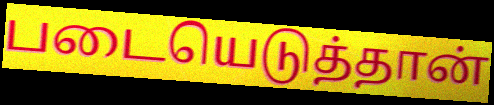
படையெடுத்தான்